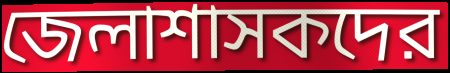
জেলাশাসকদের